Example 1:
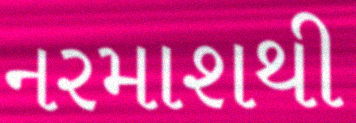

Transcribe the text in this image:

નરમાશથી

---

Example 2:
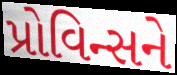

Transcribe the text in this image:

પ્રોવિન્સને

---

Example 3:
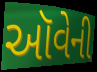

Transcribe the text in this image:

ઑવેની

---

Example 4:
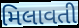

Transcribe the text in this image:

મિલાવતી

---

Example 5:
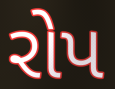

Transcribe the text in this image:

રોપ